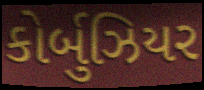
કોર્બુઝિયર